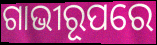
ଗାଭୀରୂପରେ